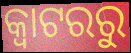
କ୍ୱାଟରରୁ